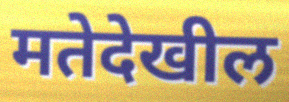
मतेदेखील